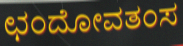
ಛಂದೋವತಂಸ